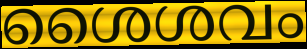
ശൈശവം